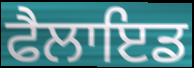
ਫੈਲਾਇਡ